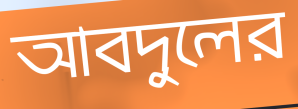
আবদুলের